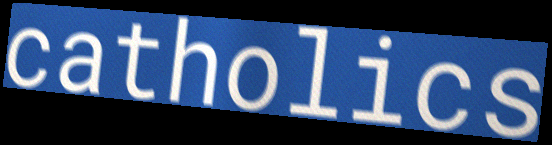
catholics